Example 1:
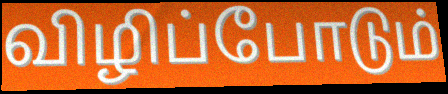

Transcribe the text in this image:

விழிப்போடும்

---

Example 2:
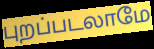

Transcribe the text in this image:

புறப்படலாமே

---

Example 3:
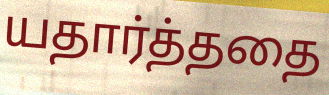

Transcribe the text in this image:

யதார்த்ததை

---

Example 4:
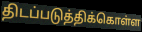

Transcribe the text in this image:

திடப்படுத்திக்கொள்ள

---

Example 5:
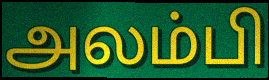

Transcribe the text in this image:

அலம்பி